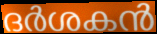
ദർശകൻ